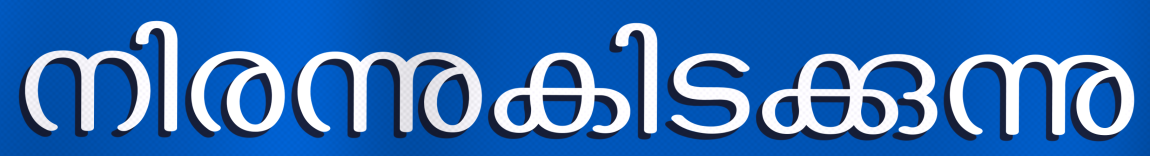
നിരന്നുകിടക്കുന്നു